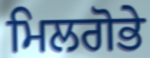
ਮਿਲਗੋਭੇ